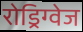
रोड्रिग्वेज